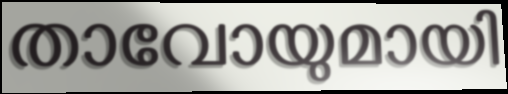
താവോയുമായി